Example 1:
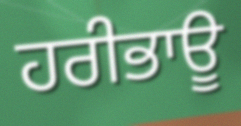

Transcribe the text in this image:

ਹਰੀਭਾਊ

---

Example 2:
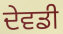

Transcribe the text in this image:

ਦੇਵਡੀ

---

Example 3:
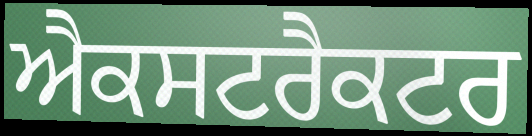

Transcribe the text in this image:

ਐਕਸਟਰੈਕਟਰ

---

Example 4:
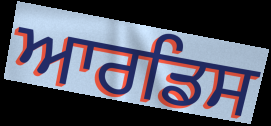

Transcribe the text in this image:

ਆਰਡਿਸ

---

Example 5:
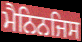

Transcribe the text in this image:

ਮੈਨਿਨਜਿਸ